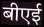
बीएई